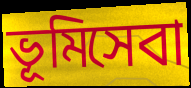
ভূমিসেবা